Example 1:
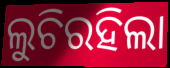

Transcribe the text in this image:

ଲୁଚିରହିଲା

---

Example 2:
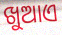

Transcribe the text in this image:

ଖୁଆଏ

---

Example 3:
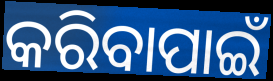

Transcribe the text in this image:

କରିବାପାଇଁ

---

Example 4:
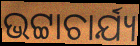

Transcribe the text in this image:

ଭଟ୍ଟାଚାର୍ଯ୍ୟ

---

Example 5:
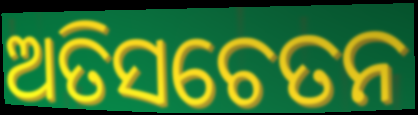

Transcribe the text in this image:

ଅତିସଚେତନ